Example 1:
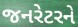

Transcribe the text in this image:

જનરેટરને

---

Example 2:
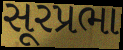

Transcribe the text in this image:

સૂરપ્રભા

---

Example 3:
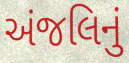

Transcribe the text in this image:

અંજલિનું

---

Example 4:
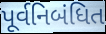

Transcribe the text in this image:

પૂર્વનિબંધિત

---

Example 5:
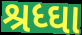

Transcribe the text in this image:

શ્રધ્ઘા